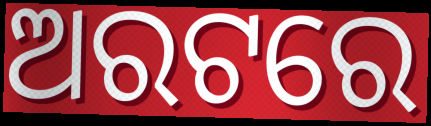
ଅରଟରେ